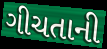
ગીચતાની